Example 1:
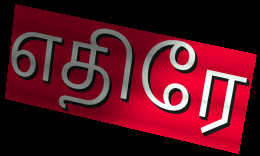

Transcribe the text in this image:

எதிரே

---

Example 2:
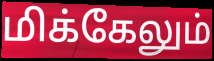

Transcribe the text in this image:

மிக்கேலும்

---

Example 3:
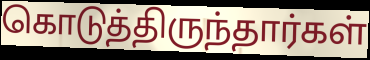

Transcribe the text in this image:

கொடுத்திருந்தார்கள்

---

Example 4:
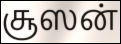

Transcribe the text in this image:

சூஸன்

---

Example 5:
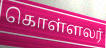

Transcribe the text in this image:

கொள்ளலர்